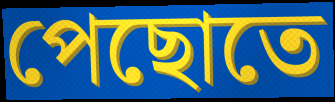
পেছোতে